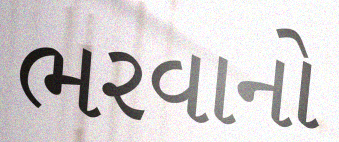
ભરવાનો